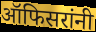
ऑफिसरांनी